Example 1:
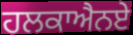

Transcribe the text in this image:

ਹਲਕਾਐਨਏ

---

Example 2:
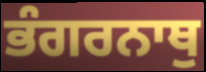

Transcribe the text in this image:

ਭੰਗਰਨਾਥੁ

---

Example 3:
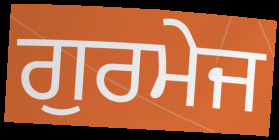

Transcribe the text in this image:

ਗੁਰਮੇਜ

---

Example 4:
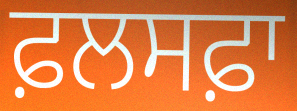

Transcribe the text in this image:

ਫ਼ਲਸਫ਼ਾ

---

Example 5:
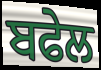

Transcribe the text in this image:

ਬਫੇਲ